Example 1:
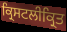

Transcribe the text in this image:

ਕ੍ਰਿਸਟਲੀਕ੍ਰਿਤ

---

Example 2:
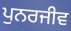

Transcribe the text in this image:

ਪੁਨਰਜੀਵ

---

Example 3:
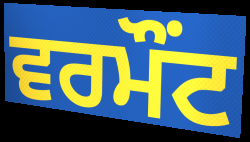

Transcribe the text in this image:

ਵਰਮੌਂਟ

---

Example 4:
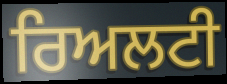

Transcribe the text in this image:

ਰਿਅਲਟੀ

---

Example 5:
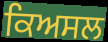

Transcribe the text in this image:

ਕਿਅਸਲ